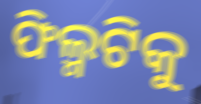
ଫିଲ୍ମଟିକୁ